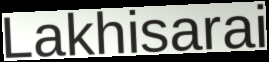
Lakhisarai